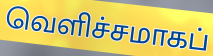
வெளிச்சமாகப்